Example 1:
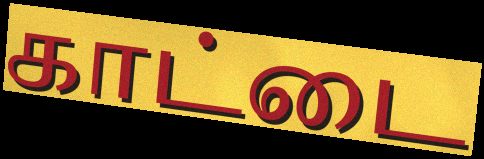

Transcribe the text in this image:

காட்டை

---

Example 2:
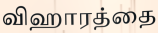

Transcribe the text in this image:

விஹாரத்தை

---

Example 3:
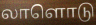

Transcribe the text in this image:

லாளொடு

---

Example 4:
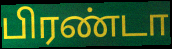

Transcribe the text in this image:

பிரண்டா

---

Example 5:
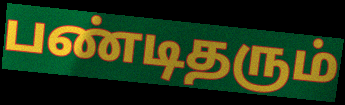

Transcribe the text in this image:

பண்டிதரும்